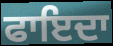
ਫਾਇਦਾ